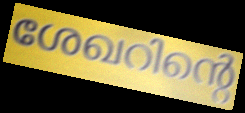
ശേഖറിന്റെ